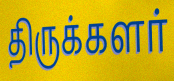
திருக்களர்